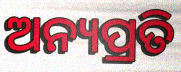
ଅନ୍ୟପ୍ରତି